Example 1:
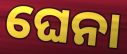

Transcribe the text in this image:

ଘେନା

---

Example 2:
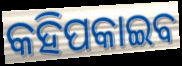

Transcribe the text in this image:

କହିପକାଇବ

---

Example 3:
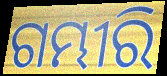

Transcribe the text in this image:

ଗମ୍ଭୀରି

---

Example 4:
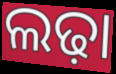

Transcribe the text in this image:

ଲଢ଼ା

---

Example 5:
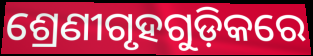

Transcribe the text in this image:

ଶ୍ରେଣୀଗୃହଗୁଡ଼ିକରେ